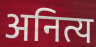
अनित्य